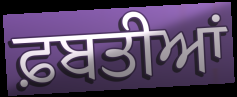
ਫ਼ਬਤੀਆਂ